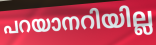
പറയാനറിയില്ല